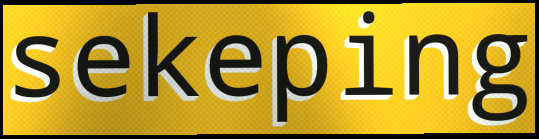
sekeping